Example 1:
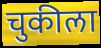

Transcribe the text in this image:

चुकीला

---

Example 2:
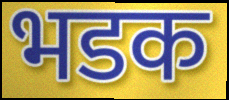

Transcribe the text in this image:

भडक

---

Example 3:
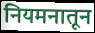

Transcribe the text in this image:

नियमनातून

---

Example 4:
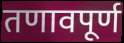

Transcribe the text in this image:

तणावपूर्ण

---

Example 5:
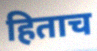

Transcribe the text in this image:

हिताच